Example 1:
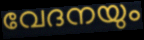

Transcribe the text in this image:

വേദനയും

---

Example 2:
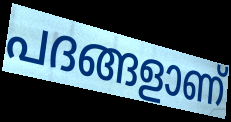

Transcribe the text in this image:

പദങ്ങളാണ്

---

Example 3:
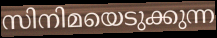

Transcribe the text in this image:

സിനിമയെടുക്കുന്ന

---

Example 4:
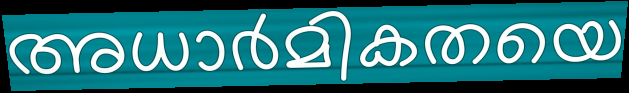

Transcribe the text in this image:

അധാർമികതയെ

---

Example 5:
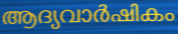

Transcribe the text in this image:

ആദ്യവാർഷികം